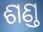
ଶଣ୍ଡ